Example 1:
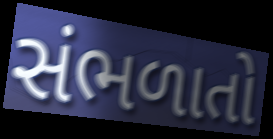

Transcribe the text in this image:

સંભળાતો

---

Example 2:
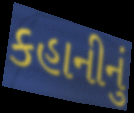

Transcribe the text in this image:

કહાનીનું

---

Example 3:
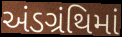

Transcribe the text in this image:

અંડગ્રંથિમાં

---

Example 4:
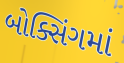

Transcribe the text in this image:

બોક્સિંગમાં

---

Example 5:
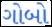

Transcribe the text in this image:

ગોબો